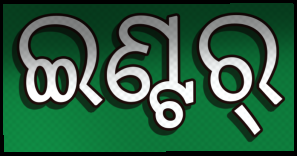
ଇଣ୍ଟର୍